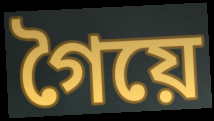
গৈয়ে